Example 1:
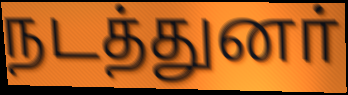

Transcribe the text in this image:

நடத்துனர்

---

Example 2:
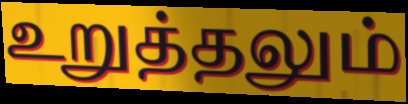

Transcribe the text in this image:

உறுத்தலும்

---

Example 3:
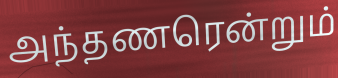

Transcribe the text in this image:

அந்தணரென்றும்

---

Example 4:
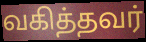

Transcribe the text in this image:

வகித்தவர்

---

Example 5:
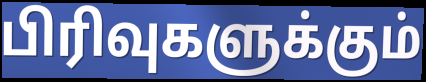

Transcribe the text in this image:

பிரிவுகளுக்கும்